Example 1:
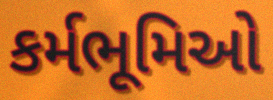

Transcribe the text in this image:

કર્મભૂમિઓ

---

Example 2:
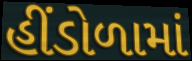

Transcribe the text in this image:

હીંડોળામાં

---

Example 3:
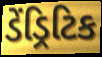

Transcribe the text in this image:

ડેંડ્રિટિક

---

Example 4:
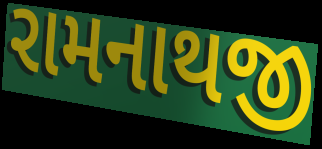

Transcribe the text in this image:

રામનાથજી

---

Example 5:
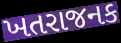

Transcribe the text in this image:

ખતરાજનક